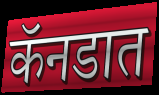
कॅनडात